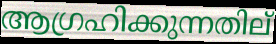
ആഗ്രഹിക്കുന്നതില്